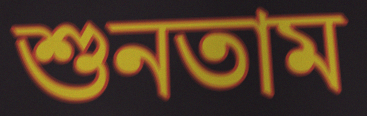
শুনতাম